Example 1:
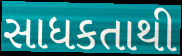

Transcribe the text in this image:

સાધકતાથી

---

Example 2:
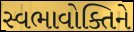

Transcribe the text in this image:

સ્વભાવોક્તિને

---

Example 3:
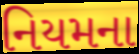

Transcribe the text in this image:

નિયમના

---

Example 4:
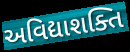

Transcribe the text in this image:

અવિદ્યાશક્તિ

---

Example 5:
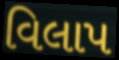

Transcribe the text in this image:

વિલાપ